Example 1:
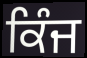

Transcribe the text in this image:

ਕਿੰਜ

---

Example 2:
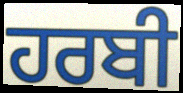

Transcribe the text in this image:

ਹਰਬੀ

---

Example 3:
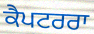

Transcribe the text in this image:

ਕੈਪਟਰਰਾ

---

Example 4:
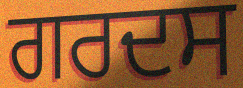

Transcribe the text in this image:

ਗਰਦਸ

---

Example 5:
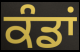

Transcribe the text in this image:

ਕੰਡਾਂ